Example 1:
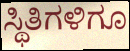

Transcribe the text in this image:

ಸ್ಥಿತಿಗಳಿಗೂ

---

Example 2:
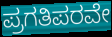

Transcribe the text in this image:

ಪ್ರಗತಿಪರವೇ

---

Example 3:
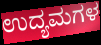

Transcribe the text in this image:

ಉದ್ಯಮಗಳ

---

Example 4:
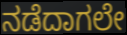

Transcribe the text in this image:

ನಡೆದಾಗಲೇ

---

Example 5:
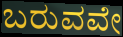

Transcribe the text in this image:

ಬರುವವೇ